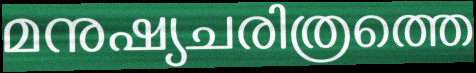
മനുഷ്യചരിത്രത്തെ